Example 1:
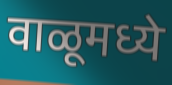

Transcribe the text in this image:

वाळूमध्ये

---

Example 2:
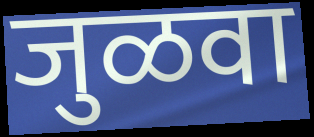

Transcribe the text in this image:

जुळवा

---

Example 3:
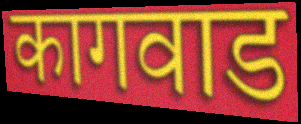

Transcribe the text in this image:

कागवाड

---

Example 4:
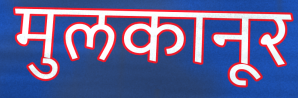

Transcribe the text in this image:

मुलकानूर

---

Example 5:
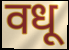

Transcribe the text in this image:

वधू